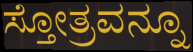
ಸ್ತೋತ್ರವನ್ನೂ